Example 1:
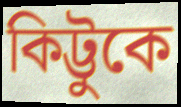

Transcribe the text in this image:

কিট্টুকে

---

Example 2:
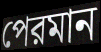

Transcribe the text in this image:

পেরমান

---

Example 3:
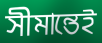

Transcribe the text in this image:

সীমান্তেই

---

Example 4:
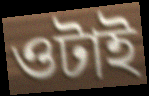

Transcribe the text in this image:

ওটাই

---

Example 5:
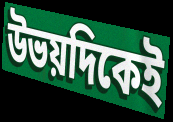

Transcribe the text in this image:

উভয়দিকেই